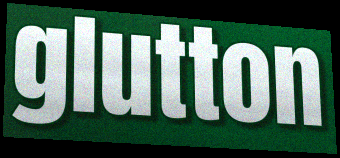
glutton